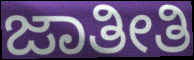
ಜಾತೀತಿ